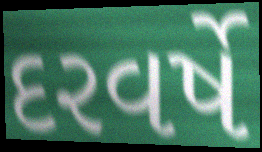
દરવર્ષે